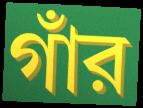
গাঁর